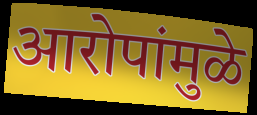
आरोपांमुळे